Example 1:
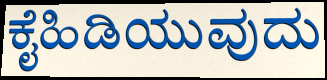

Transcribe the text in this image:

ಕೈಹಿಡಿಯುವುದು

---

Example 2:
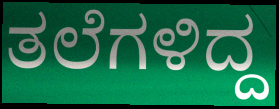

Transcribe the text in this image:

ತಲೆಗಳಿದ್ದ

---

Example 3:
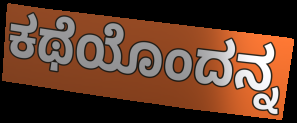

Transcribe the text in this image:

ಕಥೆಯೊಂದನ್ನ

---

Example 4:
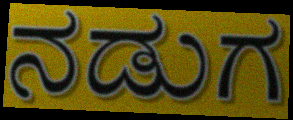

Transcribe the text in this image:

ನಡುಗ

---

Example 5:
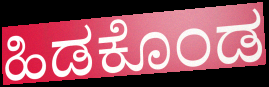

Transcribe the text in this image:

ಹಿಡಕೊಂಡ